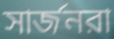
সার্জনরা